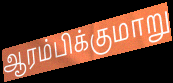
ஆரம்பிக்குமாறு